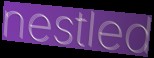
nestled